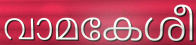
വാമകേശീ